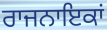
ਰਾਜਨਾਇਕਾਂ